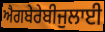
ਐਗਬੇਰੇਬੀਜੁਲਾਈ